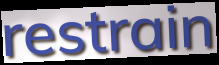
restrain